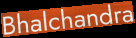
Bhalchandra